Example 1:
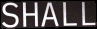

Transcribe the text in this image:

SHALL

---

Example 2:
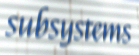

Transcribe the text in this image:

subsystems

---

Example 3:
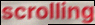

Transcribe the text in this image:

scrolling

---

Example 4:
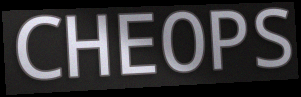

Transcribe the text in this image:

CHEOPS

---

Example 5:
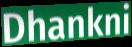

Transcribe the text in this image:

Dhankni